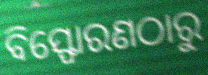
ବିସ୍ଫୋରଣଠାରୁ